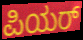
ಪಿಯರ್